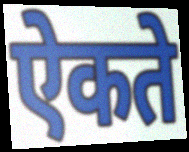
ऐकते